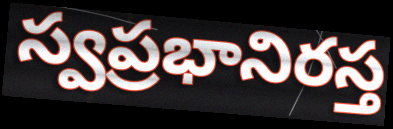
స్వప్రభానిరస్త